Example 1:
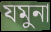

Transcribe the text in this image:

যমুনা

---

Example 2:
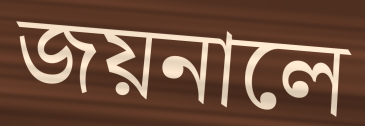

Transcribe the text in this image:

জয়নালে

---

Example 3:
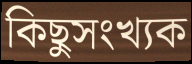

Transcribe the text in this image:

কিছুসংখ্যক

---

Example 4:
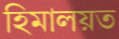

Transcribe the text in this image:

হিমালয়ত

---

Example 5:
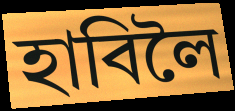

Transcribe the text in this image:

হাবিলৈ